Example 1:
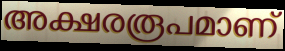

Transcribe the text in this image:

അക്ഷരരൂപമാണ്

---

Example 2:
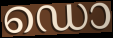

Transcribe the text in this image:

ഡൊ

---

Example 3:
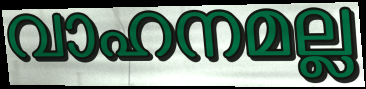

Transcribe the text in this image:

വാഹനമല്ല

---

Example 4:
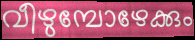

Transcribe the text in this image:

വീഴുമ്പോഴേക്കും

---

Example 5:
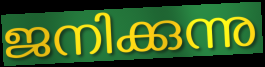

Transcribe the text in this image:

ജനിക്കുന്നു